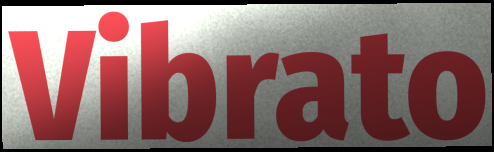
Vibrato